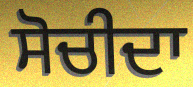
ਸੋਚੀਦਾ